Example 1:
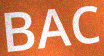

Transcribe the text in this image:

BAC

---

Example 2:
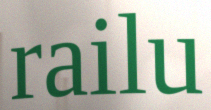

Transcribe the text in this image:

railu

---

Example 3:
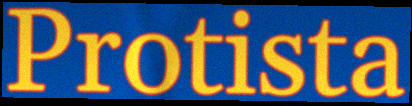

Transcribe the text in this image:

Protista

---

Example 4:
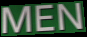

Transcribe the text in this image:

MEN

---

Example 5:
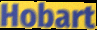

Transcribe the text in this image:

Hobart